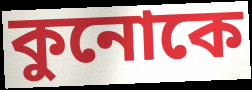
কুনোকে